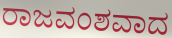
ರಾಜವಂಶವಾದ